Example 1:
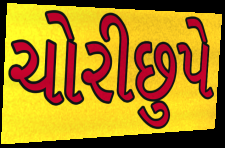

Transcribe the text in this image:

ચોરીછુપે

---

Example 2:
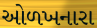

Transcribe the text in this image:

ઓળખનારા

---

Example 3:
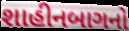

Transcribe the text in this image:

શાહીનબાગનો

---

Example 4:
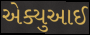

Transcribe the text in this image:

એક્યુઆઈ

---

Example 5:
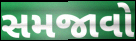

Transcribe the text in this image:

સમજાવો